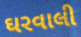
ઘરવાલી